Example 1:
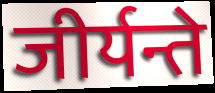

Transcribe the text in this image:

जीर्यन्ते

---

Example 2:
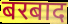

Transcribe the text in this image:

बरबाद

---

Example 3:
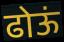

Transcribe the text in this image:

ढोऊं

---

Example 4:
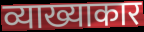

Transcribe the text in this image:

व्याख्याकार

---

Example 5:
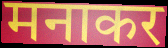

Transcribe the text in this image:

मनाकर